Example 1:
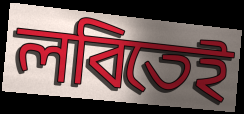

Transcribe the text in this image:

লবিতেই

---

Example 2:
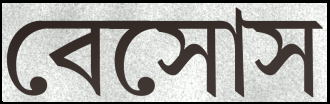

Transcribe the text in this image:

বেসোস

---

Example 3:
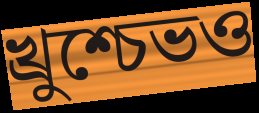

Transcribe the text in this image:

খ্রুশ্চেভও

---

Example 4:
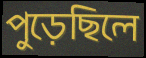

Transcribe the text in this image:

পুড়েছিলে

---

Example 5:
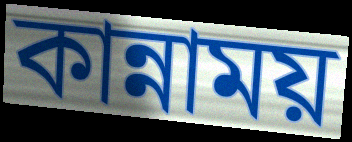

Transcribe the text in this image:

কান্নাময়